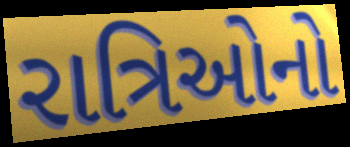
રાત્રિઓનો